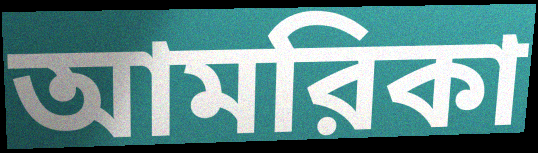
আমরিকা